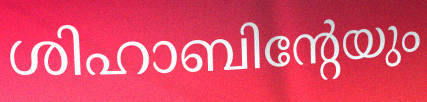
ശിഹാബിന്റേയും